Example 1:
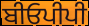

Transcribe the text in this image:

ਬੀਓਪੀਪੀ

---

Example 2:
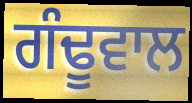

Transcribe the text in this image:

ਗੰਢੂਵਾਲ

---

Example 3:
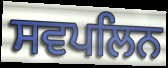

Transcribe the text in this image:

ਸਵਪਲਿਨ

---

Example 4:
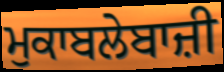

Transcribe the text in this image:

ਮੁਕਾਬਲੇਬਾਜ਼ੀ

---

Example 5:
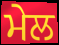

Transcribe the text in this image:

ਮੇਲ